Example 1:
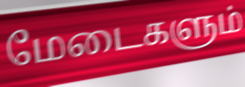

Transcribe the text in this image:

மேடைகளும்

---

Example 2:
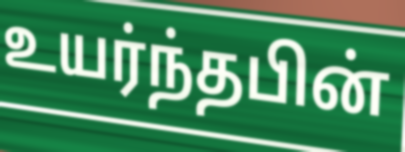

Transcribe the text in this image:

உயர்ந்தபின்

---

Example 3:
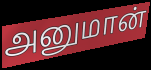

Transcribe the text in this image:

அனுமான்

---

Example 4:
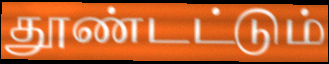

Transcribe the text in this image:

தூண்டட்டும்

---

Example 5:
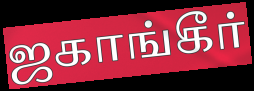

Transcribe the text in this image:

ஜகாங்கீர்